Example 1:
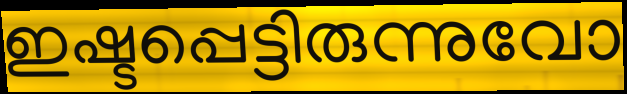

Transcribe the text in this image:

ഇഷ്ടപ്പെട്ടിരുന്നുവോ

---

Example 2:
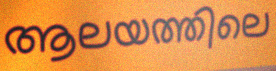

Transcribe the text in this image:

ആലയത്തിലെ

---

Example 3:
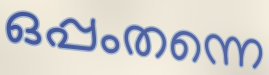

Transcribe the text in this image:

ഒപ്പംതന്നെ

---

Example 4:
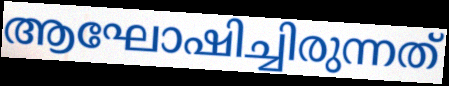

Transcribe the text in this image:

ആഘോഷിച്ചിരുന്നത്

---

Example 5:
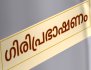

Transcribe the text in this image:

ഗിരിപ്രഭാഷണം